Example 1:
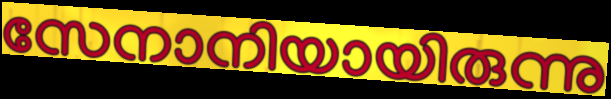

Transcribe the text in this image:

സേനാനിയായിരുന്നു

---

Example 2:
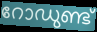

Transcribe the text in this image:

റോഡുണ്ട്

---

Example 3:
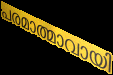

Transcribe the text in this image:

പരമാത്മാവായി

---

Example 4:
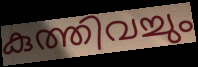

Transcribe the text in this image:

കുത്തിവച്ചും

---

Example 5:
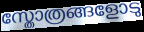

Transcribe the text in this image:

സ്തോത്രങ്ങളോടു